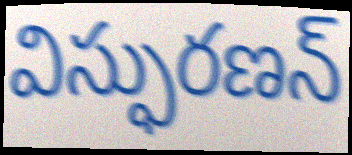
విస్ఫురణన్